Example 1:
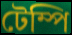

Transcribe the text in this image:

টেম্পি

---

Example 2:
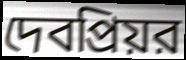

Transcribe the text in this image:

দেবপ্রিয়র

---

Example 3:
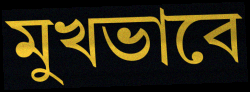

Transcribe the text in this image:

মুখভাবে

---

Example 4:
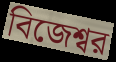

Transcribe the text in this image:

বিজেশ্বর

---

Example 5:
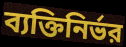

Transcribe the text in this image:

ব্যক্তিনির্ভর